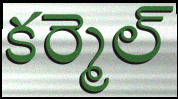
కర్మెల్